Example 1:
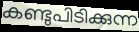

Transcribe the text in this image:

കണ്ടുപിടിക്കുന്ന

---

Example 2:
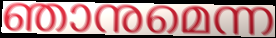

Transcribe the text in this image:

ഞാനുമെന്ന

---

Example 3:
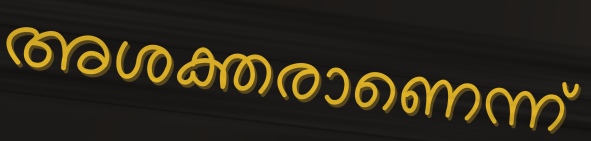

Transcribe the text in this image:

അശക്തരാണെന്ന്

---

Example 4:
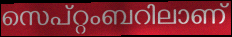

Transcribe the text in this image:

സെപ്റ്റംബറിലാണ്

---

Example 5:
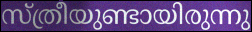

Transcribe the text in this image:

സ്ത്രീയുണ്ടായിരുന്നു